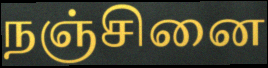
நஞ்சினை